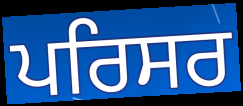
ਪਰਿਸਰ